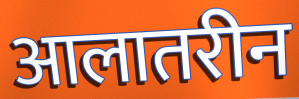
आलातरीन